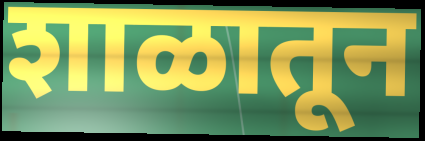
शाळातून